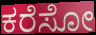
ಕರೆಸೋ